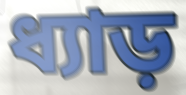
ধ্যাড়